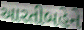
આરતીબહેને